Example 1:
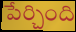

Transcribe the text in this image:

పేర్చింది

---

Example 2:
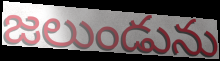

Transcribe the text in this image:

జలుండును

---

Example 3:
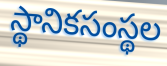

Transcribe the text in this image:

స్థానికసంస్థల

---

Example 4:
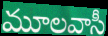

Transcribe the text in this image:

మూలవాసీ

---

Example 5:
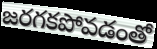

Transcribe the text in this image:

జరగకపోవడంతో